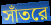
সাঁতরে